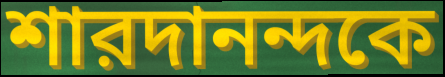
শারদানন্দকে